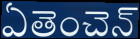
ఏతెంచెన్